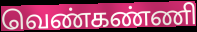
வெண்கண்ணி